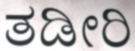
ತಡೀರಿ